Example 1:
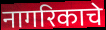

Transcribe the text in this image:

नागरिकाचे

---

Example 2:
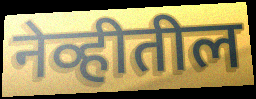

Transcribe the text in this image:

नेव्हीतील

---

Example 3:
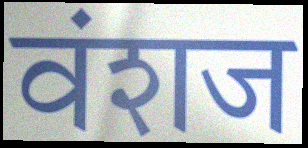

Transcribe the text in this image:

वंशज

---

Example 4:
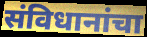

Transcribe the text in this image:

संविधानांचा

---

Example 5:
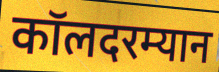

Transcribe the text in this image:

कॉलदरम्यान